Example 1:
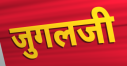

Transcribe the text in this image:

जुगलजी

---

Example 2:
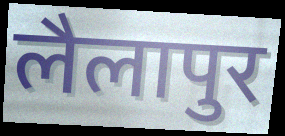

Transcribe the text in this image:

लैलापुर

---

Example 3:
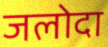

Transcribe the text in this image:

जलोदा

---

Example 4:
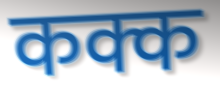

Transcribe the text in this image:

कक्क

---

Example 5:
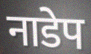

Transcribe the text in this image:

नाडेप